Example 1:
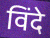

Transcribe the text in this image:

विंदे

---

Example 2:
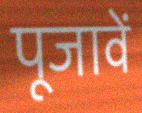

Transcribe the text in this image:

पूजावें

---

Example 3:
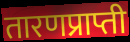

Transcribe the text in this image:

तारणप्राप्ती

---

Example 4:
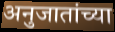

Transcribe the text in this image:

अनुजातांच्या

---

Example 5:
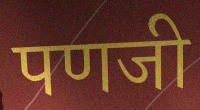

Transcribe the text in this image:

पणजी